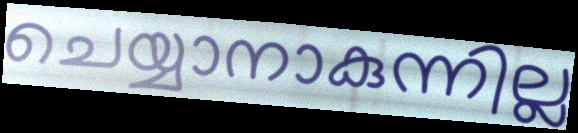
ചെയ്യാനാകുന്നില്ല